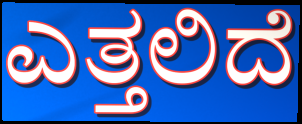
ಎತ್ತಲಿದೆ